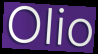
Olio